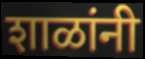
शाळांनी